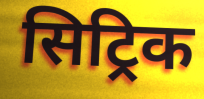
सिट्रिक